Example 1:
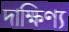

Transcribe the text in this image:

দাক্ষিণ্য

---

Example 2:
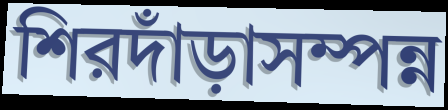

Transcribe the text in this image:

শিরদাঁড়াসম্পন্ন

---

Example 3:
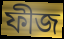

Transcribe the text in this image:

ফীজ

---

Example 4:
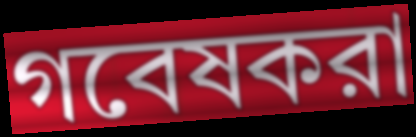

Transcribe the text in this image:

গবেষকরা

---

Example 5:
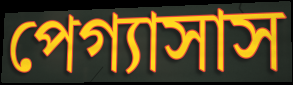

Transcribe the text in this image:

পেগ্যাসাস